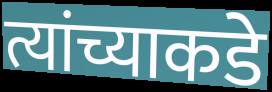
त्यांच्याकडे